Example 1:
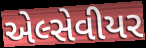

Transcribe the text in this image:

એલ્સેવીયર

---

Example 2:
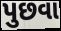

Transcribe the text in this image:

પુછવા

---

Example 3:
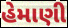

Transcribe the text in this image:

હેમાણી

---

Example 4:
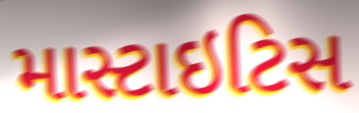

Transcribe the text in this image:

માસ્ટાઇટિસ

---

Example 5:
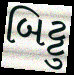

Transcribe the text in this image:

બિટ્ટુ